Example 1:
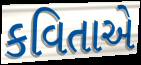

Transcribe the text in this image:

કવિતાએ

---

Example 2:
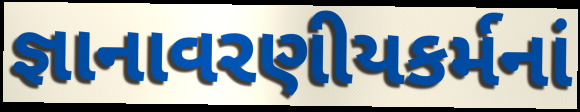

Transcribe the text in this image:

જ્ઞાનાવરણીયકર્મનાં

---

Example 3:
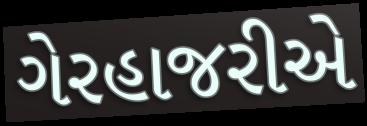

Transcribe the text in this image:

ગેરહાજરીએ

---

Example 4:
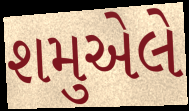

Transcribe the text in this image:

શમુએલે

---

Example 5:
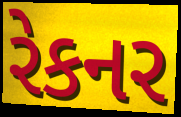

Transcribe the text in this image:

રેકનર